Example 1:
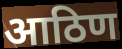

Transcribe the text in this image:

आठिण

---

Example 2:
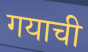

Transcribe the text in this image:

गयाची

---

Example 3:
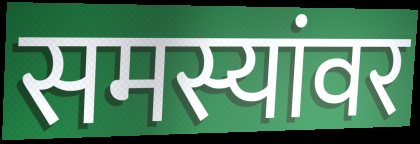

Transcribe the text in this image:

समस्यांवर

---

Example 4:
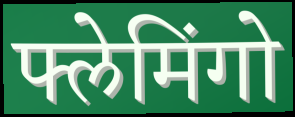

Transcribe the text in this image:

फ्लेमिंगो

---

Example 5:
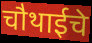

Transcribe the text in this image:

चौथाईचे